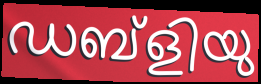
ഡബ്ളിയു